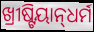
ଖ୍ରୀଷ୍ଟିୟାନ୍‌ଧର୍ମ